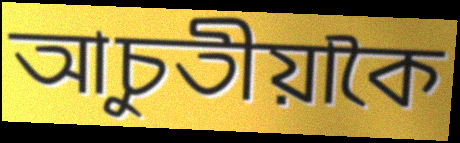
আচুতীয়াকৈ